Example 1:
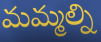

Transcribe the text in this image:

మమ్మల్ని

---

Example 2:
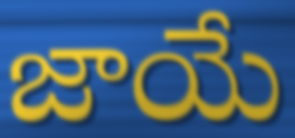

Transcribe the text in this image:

జాయే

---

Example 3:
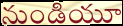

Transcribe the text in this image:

నుండియూ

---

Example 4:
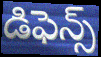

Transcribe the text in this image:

డిఫెన్స్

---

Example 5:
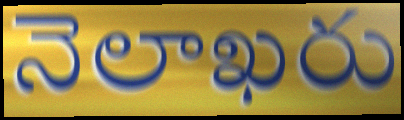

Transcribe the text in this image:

నెలాఖరు